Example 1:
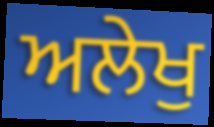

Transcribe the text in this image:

ਅਲੇਖੁ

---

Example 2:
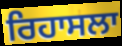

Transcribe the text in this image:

ਰਿਹਾਸਲਾ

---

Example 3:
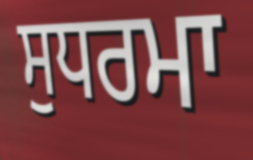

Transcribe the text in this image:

ਸੁਧਰਮਾ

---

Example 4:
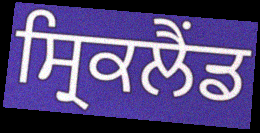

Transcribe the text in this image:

ਸ੍ਰਿਕਲੈਂਡ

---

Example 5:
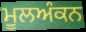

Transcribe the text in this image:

ਮੂਲਅੰਕਨ